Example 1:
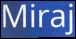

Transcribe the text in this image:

Miraj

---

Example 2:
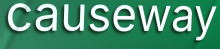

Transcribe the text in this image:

causeway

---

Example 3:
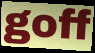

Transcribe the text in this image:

goff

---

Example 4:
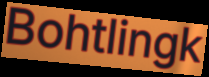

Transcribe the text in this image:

Bohtlingk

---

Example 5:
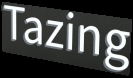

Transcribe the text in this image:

Tazing